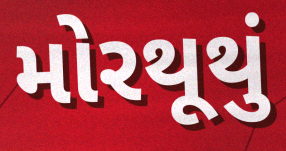
મોરથૂથું